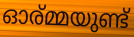
ഓര്മ്മയുണ്ട്